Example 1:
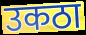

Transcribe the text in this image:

उकठा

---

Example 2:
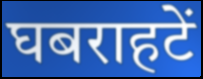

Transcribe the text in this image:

घबराहटें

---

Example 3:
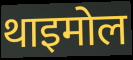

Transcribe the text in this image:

थाइमोल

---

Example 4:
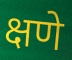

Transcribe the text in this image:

क्षणे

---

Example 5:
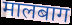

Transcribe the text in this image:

मालबाग